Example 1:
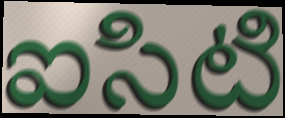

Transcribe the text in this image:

ఐసిటి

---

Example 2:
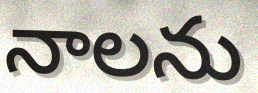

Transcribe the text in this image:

నాలను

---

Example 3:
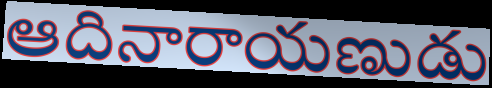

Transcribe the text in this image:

ఆదినారాయణుడు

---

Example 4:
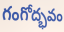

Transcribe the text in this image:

గంగోద్భవం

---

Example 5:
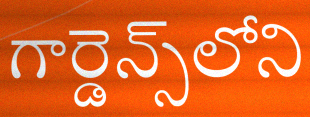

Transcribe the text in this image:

గార్డెన్స్‌లోని